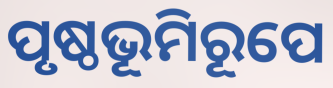
ପୃଷ୍ଠଭୂମିରୂପେ